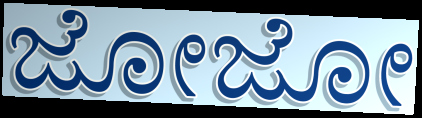
ಜೋಜೋ